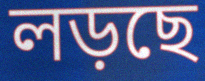
লড়ছে